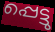
പ്പെട്ടു